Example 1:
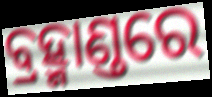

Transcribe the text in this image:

ବ୍ରହ୍ମାଣ୍ଡରେ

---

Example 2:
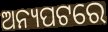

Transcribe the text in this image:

ଅନ୍ୟପଟରେ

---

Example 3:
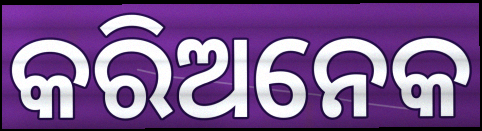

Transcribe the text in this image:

କରିଅନେକ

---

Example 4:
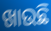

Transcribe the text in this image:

ଖାଉଛି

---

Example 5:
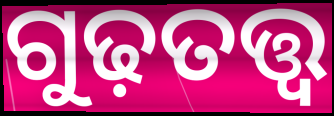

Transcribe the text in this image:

ଗୁଢ଼ତତ୍ତ୍ୱ